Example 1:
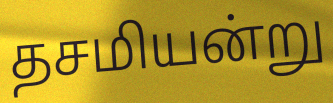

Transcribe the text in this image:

தசமியன்று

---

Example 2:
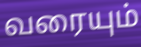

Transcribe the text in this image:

வரையும்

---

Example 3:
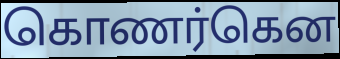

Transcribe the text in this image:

கொணர்கென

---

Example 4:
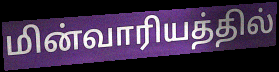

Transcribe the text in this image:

மின்வாரியத்தில்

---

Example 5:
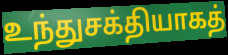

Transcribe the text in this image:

உந்துசக்தியாகத்